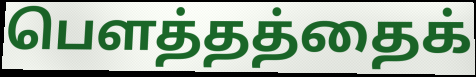
பௌத்தத்தைக்